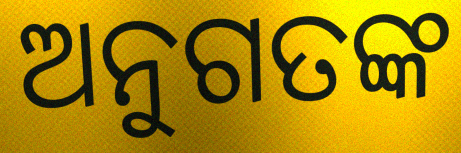
ଅନୁଗତଙ୍କ